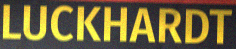
LUCKHARDT